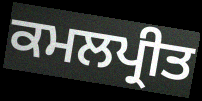
ਕਮਲਪ੍ਰੀਤ